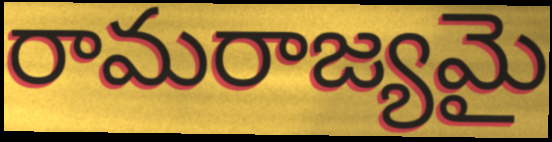
రామరాజ్యమై